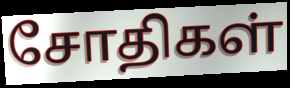
சோதிகள்